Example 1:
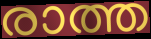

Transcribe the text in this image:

രാത്ത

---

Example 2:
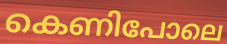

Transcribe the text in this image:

കെണിപോലെ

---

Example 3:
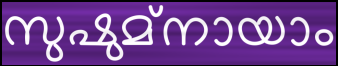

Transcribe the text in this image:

സുഷുമ്നായാം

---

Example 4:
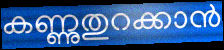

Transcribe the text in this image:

കണ്ണുതുറക്കാൻ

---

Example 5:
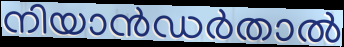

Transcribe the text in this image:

നിയാൻഡർതാൽ